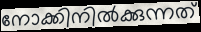
നോക്കിനിൽക്കുന്നത്